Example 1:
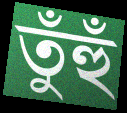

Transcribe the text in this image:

তুঁহুঁ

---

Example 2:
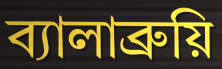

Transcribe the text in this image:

ব্যালাব্রুয়ি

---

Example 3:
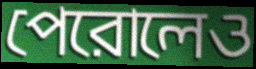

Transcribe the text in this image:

পেরোলেও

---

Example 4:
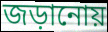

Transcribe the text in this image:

জড়ানোয়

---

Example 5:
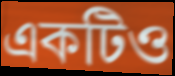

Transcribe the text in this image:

একটিও